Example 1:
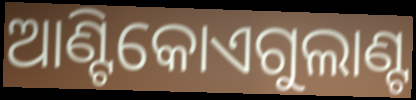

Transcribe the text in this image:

ଆଣ୍ଟିକୋଏଗୁଲାଣ୍ଟ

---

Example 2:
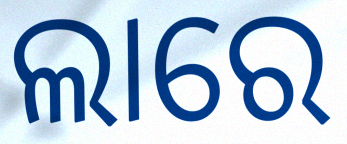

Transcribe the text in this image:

ଲାରେ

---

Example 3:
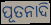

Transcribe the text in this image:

ପୂତନାଦି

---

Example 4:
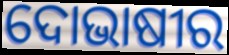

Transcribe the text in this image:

ଦୋଭାଷୀର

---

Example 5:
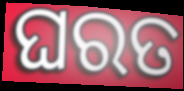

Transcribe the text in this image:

ଘରତ